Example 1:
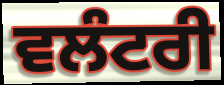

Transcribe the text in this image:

ਵਲੰਟਰੀ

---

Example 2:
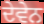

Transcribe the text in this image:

ਦੇਵੇਨ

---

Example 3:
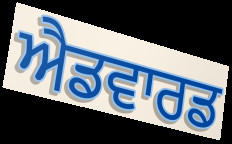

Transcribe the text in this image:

ਐਡਵਾਰਡ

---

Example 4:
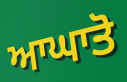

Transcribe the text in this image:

ਆਘਾਤੋ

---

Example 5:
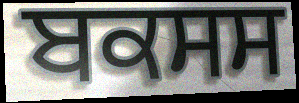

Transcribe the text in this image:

ਬਕਸਸ